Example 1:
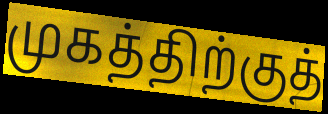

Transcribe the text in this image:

முகத்திற்குத்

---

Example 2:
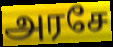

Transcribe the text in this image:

அரசே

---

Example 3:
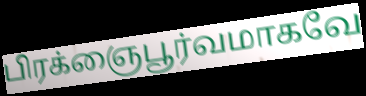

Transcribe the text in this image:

பிரக்ஞைபூர்வமாகவே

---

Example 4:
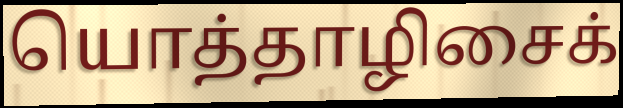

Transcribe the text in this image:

யொத்தாழிசைக்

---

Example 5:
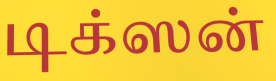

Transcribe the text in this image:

டிக்ஸன்